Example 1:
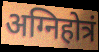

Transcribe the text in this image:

अग्निहोत्रं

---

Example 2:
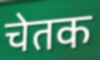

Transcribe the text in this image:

चेतक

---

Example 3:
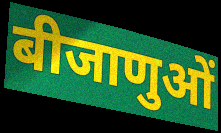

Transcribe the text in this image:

बीजाणुओं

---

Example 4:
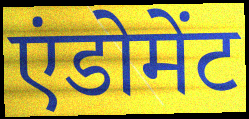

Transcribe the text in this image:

एंडोमेंट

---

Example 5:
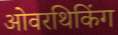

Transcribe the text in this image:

ओवरथिकिंग